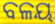
ବଳୟ